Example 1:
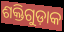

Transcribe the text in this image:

ଶକ୍ତିଗୁଡ଼ାକ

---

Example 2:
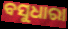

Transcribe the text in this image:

ବସୁଧାରା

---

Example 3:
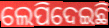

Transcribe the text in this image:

ଲେପିଦେଇଛି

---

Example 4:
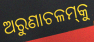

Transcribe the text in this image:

ଅରୁଣାଚଳମ୍‌କୁ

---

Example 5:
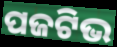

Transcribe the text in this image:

ପଜଟିଭ